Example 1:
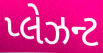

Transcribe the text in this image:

પ્લેઝન્ટ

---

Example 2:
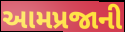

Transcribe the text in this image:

આમપ્રજાની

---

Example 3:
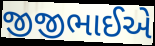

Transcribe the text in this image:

જીજીભાઈએ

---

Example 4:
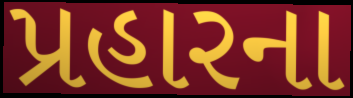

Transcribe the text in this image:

પ્રહારના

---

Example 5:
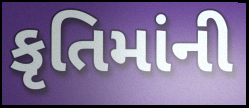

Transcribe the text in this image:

કૃતિમાંની